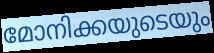
മോനിക്കയുടെയും